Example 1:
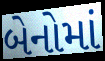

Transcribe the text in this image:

બેનોમાં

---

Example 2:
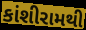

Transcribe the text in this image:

કાંશીરામથી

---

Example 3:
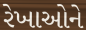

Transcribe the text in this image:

રેખાઓને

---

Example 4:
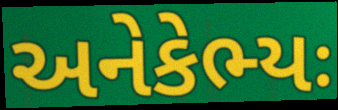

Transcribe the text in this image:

અનેકેભ્યઃ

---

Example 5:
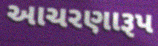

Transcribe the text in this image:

આચરણારૂપ